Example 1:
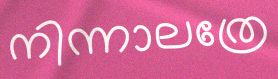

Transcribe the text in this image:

നിന്നാലത്രേ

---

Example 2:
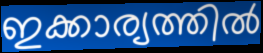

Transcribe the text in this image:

ഇക്കാര്യത്തിൽ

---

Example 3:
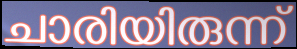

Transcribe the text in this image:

ചാരിയിരുന്ന്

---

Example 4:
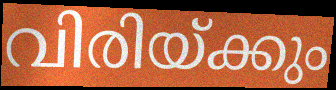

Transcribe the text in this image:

വിരിയ്ക്കും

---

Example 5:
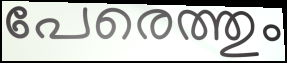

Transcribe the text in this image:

പേരെത്തും